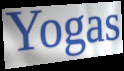
Yogas